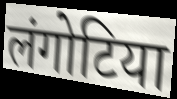
लंगोटिया